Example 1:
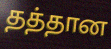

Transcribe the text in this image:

தத்தான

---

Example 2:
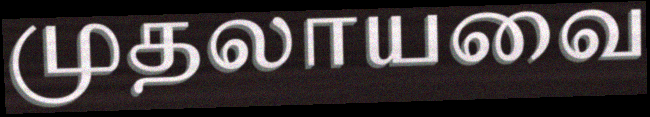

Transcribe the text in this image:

முதலாயவை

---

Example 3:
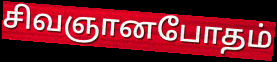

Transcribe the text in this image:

சிவஞானபோதம்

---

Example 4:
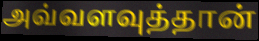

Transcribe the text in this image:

அவ்வளவுத்தான்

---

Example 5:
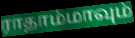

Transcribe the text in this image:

ராதாம்மாவும்